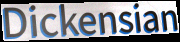
Dickensian